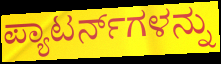
ಪ್ಯಾಟರ್ನ್‌ಗಳನ್ನು